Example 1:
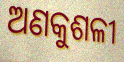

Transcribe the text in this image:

ଅଣକୁଶଳୀ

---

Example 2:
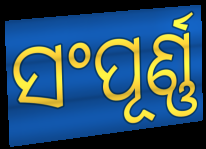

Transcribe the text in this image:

ସଂପୂର୍ଣ୍ଣ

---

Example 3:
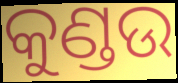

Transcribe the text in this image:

କୁଣ୍ଡଉ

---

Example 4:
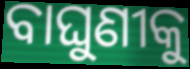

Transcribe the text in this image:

ବାଘୁଣୀକୁ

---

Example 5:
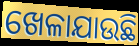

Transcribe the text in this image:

ଖେଳାଯାଉଛି